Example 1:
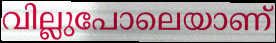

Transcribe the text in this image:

വില്ലുപോലെയാണ്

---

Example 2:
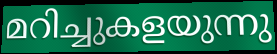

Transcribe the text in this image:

മറിച്ചുകളയുന്നു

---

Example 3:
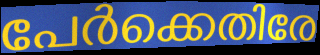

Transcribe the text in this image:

പേർക്കെതിരേ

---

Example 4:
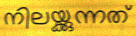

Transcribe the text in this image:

നിലയ്ക്കുന്നത്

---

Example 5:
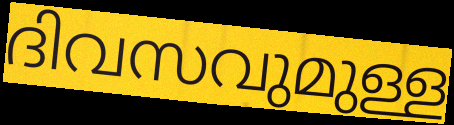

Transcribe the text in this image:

ദിവസവുമുള്ള